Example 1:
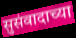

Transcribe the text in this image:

सुसंवादाच्या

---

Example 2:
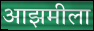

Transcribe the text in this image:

आझमीला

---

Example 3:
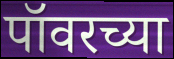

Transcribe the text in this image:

पॉवरच्या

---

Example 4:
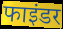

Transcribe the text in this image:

फाइंडर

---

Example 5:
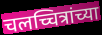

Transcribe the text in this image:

चलच्चित्रांच्या